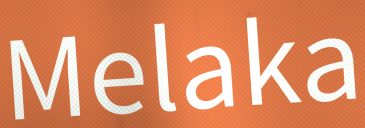
Melaka